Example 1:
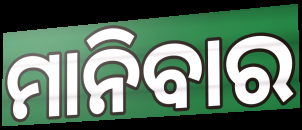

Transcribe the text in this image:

ମାନିବାର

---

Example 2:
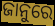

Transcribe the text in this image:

ଜାନୁରେ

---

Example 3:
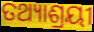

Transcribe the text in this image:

ତଥ୍ୟାଶ୍ରୟୀ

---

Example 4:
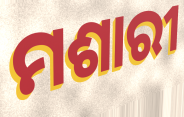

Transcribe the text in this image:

ମଶାରୀ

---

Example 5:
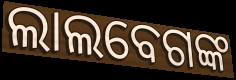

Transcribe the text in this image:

ଲାଲବେଗଙ୍କ